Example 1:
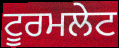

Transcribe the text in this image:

ਟੂਰਮਲੇਟ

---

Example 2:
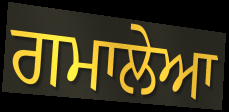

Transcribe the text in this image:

ਗਮਾਲੇਆ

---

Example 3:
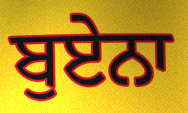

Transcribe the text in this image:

ਬੁਏਨਾ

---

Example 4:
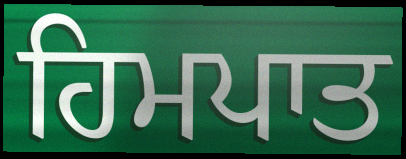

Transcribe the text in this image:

ਹਿਮਪਾਤ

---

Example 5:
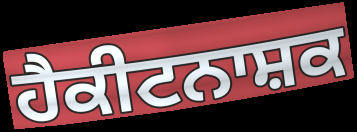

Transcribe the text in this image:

ਹੈਕੀਟਨਾਸ਼ਕ